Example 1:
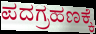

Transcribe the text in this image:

ಪದಗ್ರಹಣಕ್ಕೆ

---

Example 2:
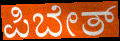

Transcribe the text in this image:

ಪಿಬೇತ್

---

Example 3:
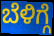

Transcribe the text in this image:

ಬೆಳಿಗ್ಗೆ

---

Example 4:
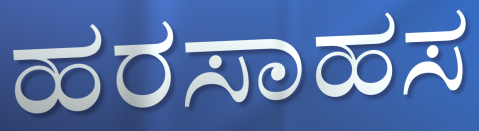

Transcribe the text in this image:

ಹರಸಾಹಸ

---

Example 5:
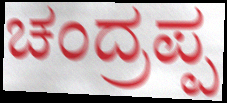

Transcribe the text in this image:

ಚಂದ್ರಪ್ಪ